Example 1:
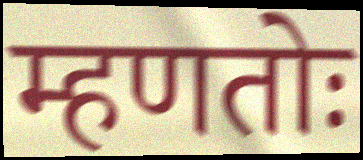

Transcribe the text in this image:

म्हणतोः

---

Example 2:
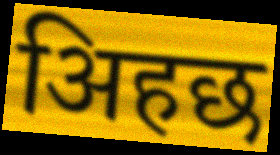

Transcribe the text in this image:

अिहछ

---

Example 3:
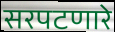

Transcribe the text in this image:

सरपटणारे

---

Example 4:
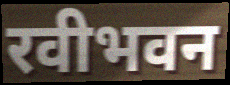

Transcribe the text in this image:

रवीभवन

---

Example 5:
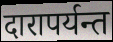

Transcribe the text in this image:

दारापर्यन्त